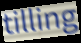
tilling